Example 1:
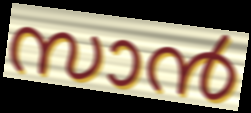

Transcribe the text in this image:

സാൻ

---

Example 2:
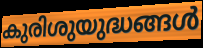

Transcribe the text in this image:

കുരിശുയുദ്ധങ്ങൾ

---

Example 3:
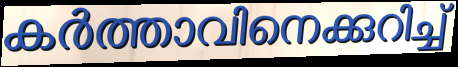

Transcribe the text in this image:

കർത്താവിനെക്കുറിച്ച്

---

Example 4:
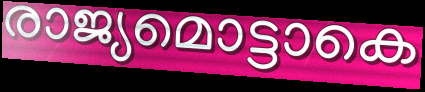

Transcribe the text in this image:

രാജ്യമൊട്ടാകെ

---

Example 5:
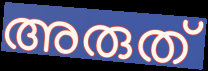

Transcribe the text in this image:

അരുത്